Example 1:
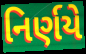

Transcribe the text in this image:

નિર્ણયે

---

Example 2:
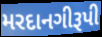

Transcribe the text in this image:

મરદાનગીરૂપી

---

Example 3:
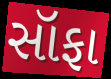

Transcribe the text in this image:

સૉફા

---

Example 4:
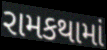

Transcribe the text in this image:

રામકથામાં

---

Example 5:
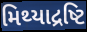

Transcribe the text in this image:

મિથ્યાદ્રષ્ટિ